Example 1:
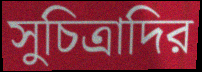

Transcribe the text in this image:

সুচিত্রাদির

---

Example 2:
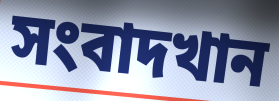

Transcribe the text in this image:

সংবাদখান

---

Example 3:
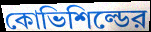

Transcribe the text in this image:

কোভিশিল্ডের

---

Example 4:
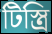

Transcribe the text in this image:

টিস্ত্রি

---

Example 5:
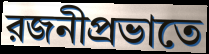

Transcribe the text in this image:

রজনীপ্রভাতে